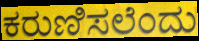
ಕರುಣಿಸಲೆಂದು